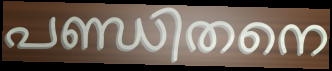
പണ്ഡിതനെ